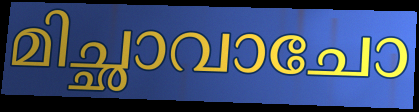
മിച്ഛാവാചോ